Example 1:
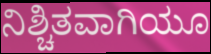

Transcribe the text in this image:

ನಿಶ್ಚಿತವಾಗಿಯೂ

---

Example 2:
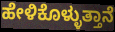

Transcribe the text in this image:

ಹೇಳಿಕೊಳ್ಳುತ್ತಾನೆ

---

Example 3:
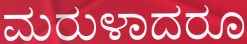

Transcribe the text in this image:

ಮರುಳಾದರೂ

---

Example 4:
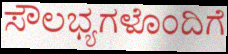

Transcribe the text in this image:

ಸೌಲಭ್ಯಗಳೊಂದಿಗೆ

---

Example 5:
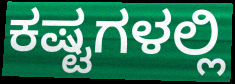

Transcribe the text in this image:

ಕಷ್ಟಗಳಲ್ಲಿ